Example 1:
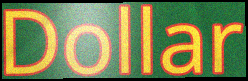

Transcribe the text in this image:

Dollar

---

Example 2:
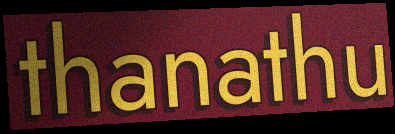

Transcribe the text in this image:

thanathu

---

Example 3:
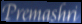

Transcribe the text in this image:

Premashri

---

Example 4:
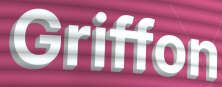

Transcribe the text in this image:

Griffon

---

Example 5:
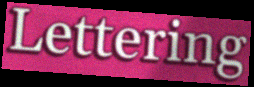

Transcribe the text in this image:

Lettering